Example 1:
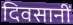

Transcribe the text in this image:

दिवसानीं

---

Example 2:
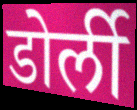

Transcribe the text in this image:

डोर्ली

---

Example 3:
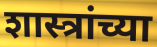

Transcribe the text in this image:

शास्त्रांच्या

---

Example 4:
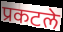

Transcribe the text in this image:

प्रकटले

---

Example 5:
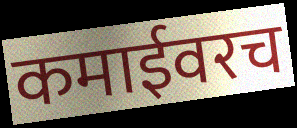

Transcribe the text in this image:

कमाईवरच